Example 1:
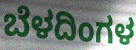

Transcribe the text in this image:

ಬೆಳದಿಂಗಳ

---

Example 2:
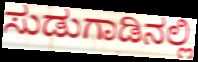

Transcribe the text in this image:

ಸುಡುಗಾಡಿನಲ್ಲಿ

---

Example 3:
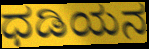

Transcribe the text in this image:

ಧಡಿಯನ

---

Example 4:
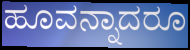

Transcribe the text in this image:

ಹೂವನ್ನಾದರೂ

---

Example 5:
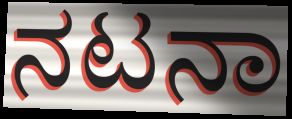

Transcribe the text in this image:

ನಟನಾ